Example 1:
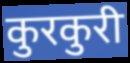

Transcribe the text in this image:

कुरकुरी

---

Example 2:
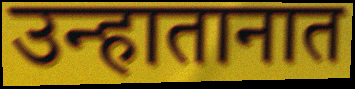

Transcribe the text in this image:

उन्हातानात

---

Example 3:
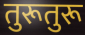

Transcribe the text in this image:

तुरूतुरू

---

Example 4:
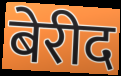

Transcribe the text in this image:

बेरीद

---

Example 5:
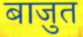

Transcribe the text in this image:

बाजुत